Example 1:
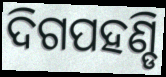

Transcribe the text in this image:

ଦିଗପହଣ୍ଡି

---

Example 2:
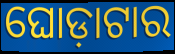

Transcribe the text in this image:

ଘୋଡ଼ାଟାର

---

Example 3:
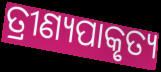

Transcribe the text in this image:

ତ୍ରୀଣ୍ୟପାକୃତ୍ୟ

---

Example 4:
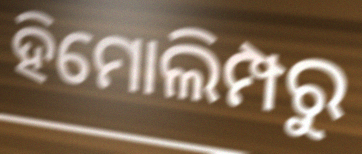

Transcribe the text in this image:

ହିମୋଲିମ୍ପରୁ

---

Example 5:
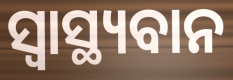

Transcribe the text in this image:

ସ୍ୱାସ୍ଥ୍ୟବାନ